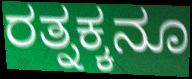
ರತ್ನಕ್ಕನೂ